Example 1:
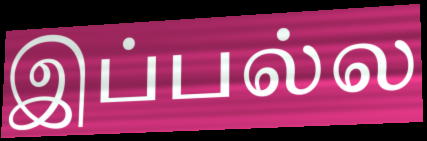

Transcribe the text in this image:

இப்பல்ல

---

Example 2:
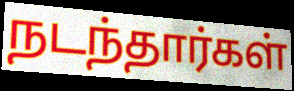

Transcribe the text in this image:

நடந்தார்கள்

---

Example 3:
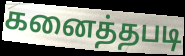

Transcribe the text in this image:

கனைத்தபடி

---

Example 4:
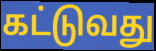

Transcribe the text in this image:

கட்டுவது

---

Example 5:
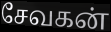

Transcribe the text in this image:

சேவகன்